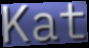
Kat